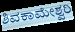
ಶಿವಕಾಮೇಶ್ವರಿ